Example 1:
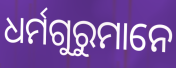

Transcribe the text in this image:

ଧର୍ମଗୁରୁମାନେ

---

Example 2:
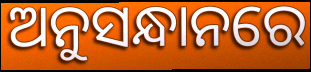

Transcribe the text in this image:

ଅନୁସନ୍ଧାନରେ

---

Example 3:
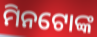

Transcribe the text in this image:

ମିନଟୋଙ୍କ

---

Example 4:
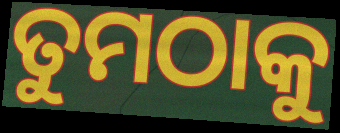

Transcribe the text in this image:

ତୁମଠାକୁ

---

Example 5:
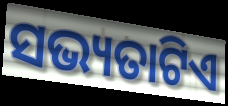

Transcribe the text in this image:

ସଭ୍ୟତାଟିଏ